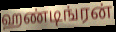
ஹண்டிங்ரன்